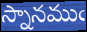
స్నానముఁ